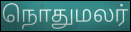
நொதுமலர்